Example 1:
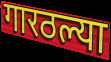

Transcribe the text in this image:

गारठल्या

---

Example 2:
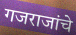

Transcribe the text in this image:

गजराजांचे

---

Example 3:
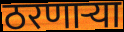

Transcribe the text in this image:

ठरणाऱ्या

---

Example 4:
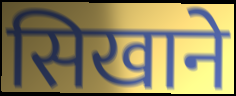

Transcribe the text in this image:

सिखाने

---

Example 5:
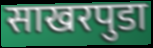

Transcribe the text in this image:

साखरपुडा